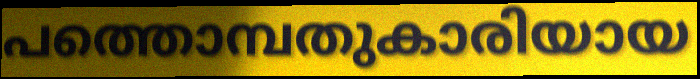
പത്തൊമ്പതുകാരിയായ